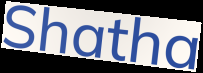
Shatha